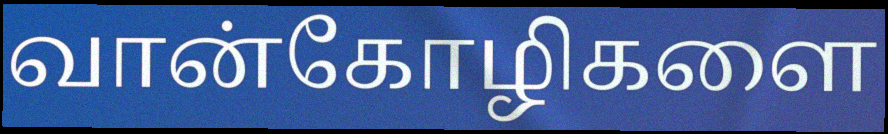
வான்கோழிகளை